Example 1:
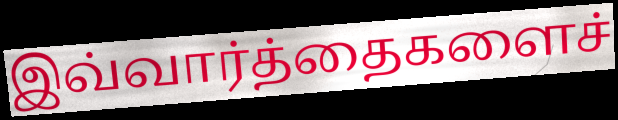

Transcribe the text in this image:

இவ்வார்த்தைகளைச்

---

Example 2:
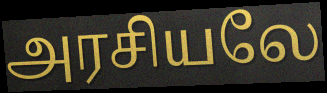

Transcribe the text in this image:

அரசியலே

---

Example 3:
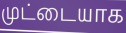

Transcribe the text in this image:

முட்டையாக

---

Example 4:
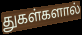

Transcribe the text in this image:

துகள்களால்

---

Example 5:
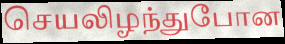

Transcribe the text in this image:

செயலிழந்துபோன